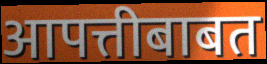
आपत्तीबाबत